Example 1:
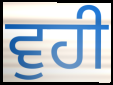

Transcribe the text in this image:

ਵੁਹੀ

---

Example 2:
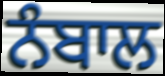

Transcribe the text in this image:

ਨੰਬਾਲ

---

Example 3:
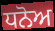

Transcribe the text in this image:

ਧਨੋਅ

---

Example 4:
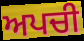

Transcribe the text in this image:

ਅਪਚੀ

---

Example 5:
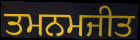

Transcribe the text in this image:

ਤਮਨਮਜੀਤ